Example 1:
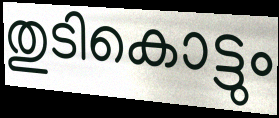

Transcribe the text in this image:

തുടികൊട്ടും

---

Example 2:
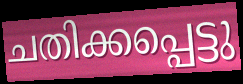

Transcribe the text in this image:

ചതിക്കപ്പെട്ടു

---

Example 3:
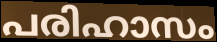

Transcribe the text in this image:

പരിഹാസം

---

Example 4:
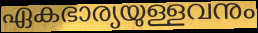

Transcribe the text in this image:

ഏകഭാര്യയുള്ളവനും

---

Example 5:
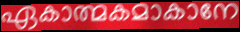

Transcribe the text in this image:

ഏകാത്മകമാകാനേ